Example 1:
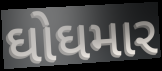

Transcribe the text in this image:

ઘોઘમાર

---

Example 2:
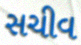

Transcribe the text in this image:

સચીવ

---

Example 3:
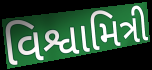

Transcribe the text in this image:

વિશ્વામિત્રી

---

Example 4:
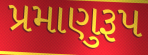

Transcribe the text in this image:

પ્રમાણુરૂપ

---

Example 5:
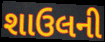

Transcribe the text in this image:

શાઉલની